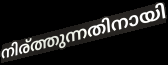
നിര്ത്തുന്നതിനായി